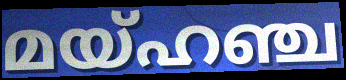
മയ്ഹഞ്ച